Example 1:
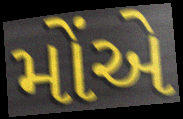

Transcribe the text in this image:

મોંએ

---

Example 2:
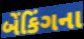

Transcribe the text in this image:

બેંકિંગના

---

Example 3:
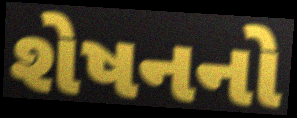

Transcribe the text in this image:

શેષનનો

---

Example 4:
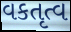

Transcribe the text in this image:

વકતૃત્વ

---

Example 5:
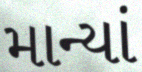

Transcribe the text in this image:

માન્યાં